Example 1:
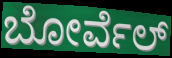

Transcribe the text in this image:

ಬೋರ್ವೆಲ್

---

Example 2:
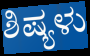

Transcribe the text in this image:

ಶಿಷ್ಯಳು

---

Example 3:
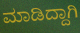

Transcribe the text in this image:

ಮಾಡಿದ್ದಾಗಿ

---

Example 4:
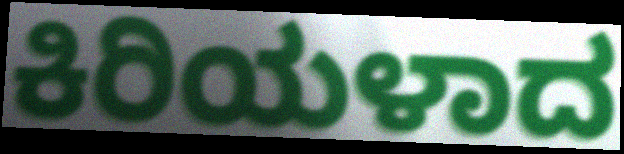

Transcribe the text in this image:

ಕಿರಿಯಳಾದ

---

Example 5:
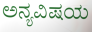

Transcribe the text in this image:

ಅನ್ಯವಿಷಯ